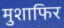
मुशाफिर